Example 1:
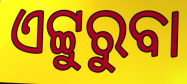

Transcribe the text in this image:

ଏଟ୍ଟୁରୁବା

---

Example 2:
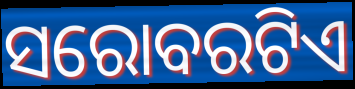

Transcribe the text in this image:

ସରୋବରଟିଏ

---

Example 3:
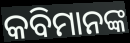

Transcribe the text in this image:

କବିମାନଙ୍କ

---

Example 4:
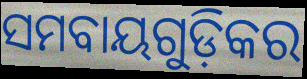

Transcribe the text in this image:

ସମବାୟଗୁଡ଼ିକର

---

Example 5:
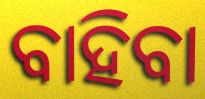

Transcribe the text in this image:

ବାହିବା